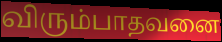
விரும்பாதவனை